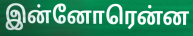
இன்னோரென்ன